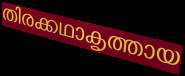
തിരക്കഥാകൃത്തായ